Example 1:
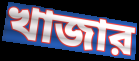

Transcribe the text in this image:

খাজার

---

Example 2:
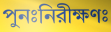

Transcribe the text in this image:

পুনঃনিরীক্ষণঃ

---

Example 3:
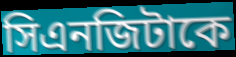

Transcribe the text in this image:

সিএনজিটাকে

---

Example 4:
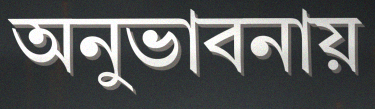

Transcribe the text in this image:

অনুভাবনায়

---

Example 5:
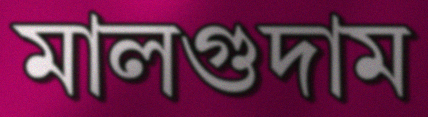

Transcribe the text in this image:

মালগুদাম